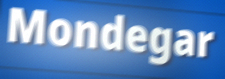
Mondegar